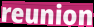
reunion